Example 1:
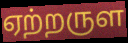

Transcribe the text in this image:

ஏற்றருள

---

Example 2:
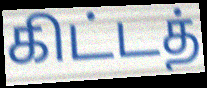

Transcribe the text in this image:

கிட்டத்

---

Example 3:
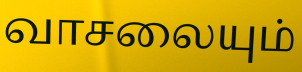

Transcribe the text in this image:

வாசலையும்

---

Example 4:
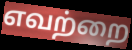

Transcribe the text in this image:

எவற்றை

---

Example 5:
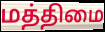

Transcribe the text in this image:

மத்திமை